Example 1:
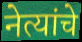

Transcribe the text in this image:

नेत्यांचे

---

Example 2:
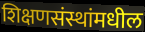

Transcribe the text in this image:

शिक्षणसंस्थांमधील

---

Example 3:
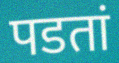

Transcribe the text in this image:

पडतां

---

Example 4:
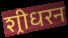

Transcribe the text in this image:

श्रीधरन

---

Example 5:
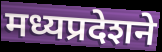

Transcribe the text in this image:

मध्यप्रदेशने